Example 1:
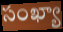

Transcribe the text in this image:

సంఖ్యా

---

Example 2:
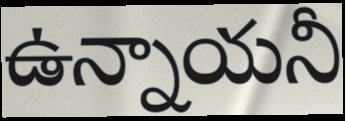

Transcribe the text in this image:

ఉన్నాయనీ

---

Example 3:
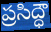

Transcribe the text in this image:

ప్రసిద్ధౌ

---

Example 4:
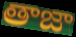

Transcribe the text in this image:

తాజా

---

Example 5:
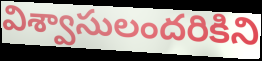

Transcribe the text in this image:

విశ్వాసులందరికిని